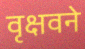
वृक्षवने